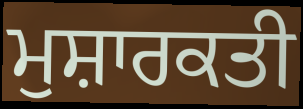
ਮੁਸ਼ਾਰਕਤੀ